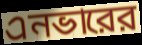
এনভারের